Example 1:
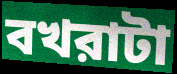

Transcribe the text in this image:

বখরাটা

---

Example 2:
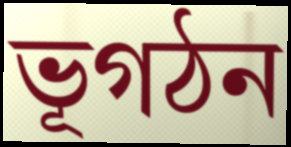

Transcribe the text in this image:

ভূগঠন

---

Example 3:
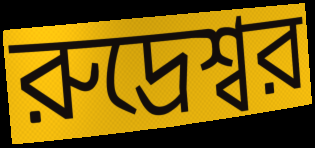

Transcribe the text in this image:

রুদ্রেশ্বর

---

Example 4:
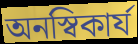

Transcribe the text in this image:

অনস্বিকার্য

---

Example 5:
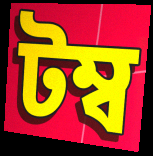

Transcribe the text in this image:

টম্ব